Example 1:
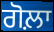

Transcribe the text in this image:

ਗੋਲ਼ਾ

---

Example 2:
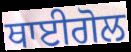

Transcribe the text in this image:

ਥਾਈਗੋਲ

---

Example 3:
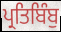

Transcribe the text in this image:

ਪ੍ਰਤਿਬਿੰਬੁ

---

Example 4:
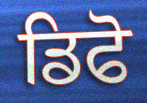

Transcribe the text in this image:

ਡਿਫੋ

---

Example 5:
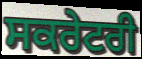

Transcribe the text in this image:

ਸਕਰੇਟਰੀ